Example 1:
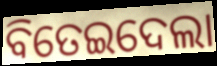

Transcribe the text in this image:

ବିତେଇଦେଲା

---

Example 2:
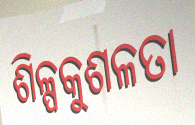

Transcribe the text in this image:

ଶିଳ୍ପକୁଶଳତା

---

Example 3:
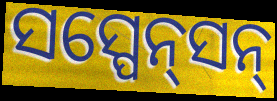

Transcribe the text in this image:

ସସ୍ପେନ୍‌ସନ୍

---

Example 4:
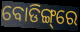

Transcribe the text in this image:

ବୋଡିଙ୍ଗ୍‌ରେ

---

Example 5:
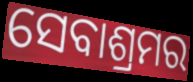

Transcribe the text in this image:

ସେବାଶ୍ରମର